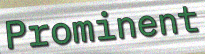
Prominent